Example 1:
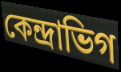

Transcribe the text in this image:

কেন্দ্রাভিগ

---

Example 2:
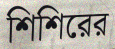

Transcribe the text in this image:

শিশিরের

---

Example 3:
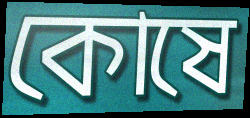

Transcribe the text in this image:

কোষে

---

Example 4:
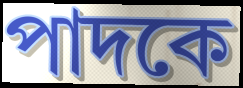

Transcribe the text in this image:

পাদকে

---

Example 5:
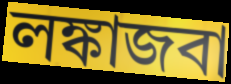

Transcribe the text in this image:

লঙ্কাজবা